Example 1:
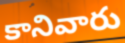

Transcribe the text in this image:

కానివారు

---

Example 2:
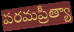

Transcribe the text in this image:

పరమప్రీత్యా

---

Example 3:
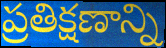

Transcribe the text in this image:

ప్రతిక్షణాన్ని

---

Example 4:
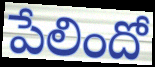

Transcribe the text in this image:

పేలిందో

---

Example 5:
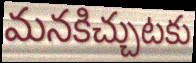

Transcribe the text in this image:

మనకిచ్చుటకు